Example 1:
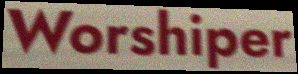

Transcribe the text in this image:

Worshiper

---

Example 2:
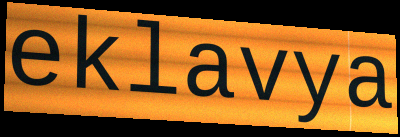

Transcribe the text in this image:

eklavya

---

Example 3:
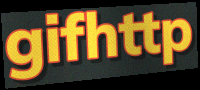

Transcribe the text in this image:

gifhttp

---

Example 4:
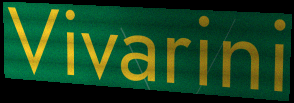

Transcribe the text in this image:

Vivarini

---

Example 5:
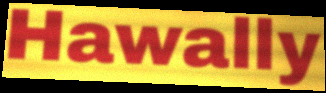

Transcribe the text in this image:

Hawally